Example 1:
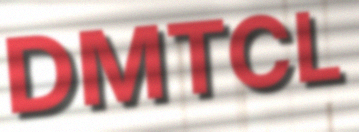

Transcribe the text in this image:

DMTCL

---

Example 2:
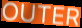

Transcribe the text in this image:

OUTER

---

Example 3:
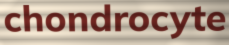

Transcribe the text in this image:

chondrocyte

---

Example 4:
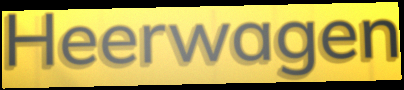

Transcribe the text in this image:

Heerwagen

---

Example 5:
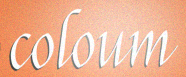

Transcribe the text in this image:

coloum